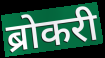
ब्रोकरी